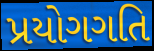
પ્રયોગગતિ